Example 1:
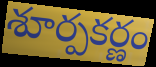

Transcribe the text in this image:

శూర్పకర్ణం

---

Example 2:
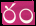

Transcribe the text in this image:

రం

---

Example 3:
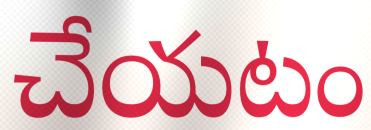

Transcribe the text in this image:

చేయటం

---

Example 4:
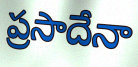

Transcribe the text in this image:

ప్రసాదేనా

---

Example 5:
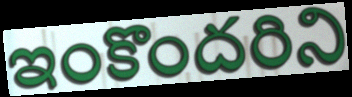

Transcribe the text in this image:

ఇంకొందరిని